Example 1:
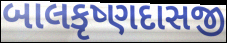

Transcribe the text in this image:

બાલકૃષ્ણદાસજી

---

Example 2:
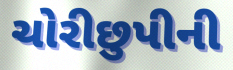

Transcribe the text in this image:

ચોરીછુપીની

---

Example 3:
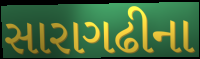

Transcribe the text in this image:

સારાગઢીના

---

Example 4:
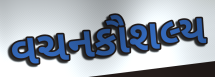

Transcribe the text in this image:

વચનકૌશલ્ય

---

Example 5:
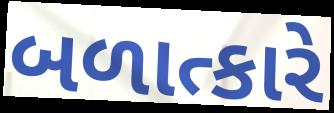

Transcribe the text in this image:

બળાત્કારે